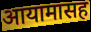
आयामासह